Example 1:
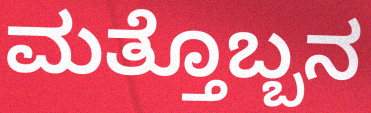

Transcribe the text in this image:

ಮತ್ತೊಬ್ಬನ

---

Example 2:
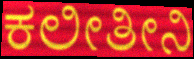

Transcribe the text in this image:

ಕಲೀತೀನಿ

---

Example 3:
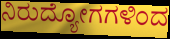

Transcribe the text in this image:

ನಿರುದ್ಯೋಗಗಳಿಂದ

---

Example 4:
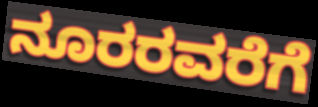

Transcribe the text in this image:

ನೂರರವರೆಗೆ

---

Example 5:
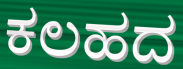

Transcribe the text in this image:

ಕಲಹದ